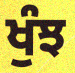
ਖੁੰਝ